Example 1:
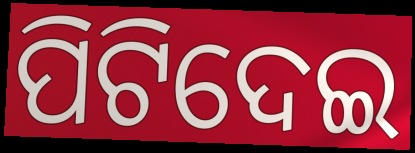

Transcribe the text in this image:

ପିଟିଦେଇ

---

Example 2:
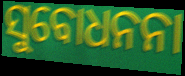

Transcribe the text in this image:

ସୁବୋଧନନା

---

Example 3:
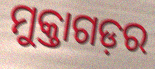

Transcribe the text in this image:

ମୁକ୍ତାଗଡ଼ର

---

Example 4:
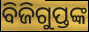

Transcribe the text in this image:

ବିଜିଗୁପ୍ତଙ୍କ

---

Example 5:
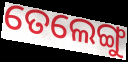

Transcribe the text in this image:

ତେଲେଙ୍ଗୁ